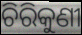
ଚିରିକୁଣୀ